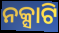
ନକ୍ସାଟି